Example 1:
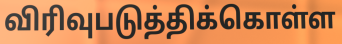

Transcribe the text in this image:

விரிவுபடுத்திக்கொள்ள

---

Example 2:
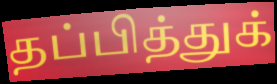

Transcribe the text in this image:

தப்பித்துக்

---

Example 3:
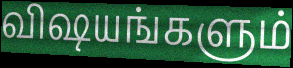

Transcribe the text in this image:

விஷயங்களும்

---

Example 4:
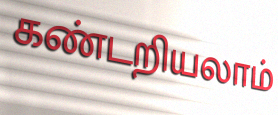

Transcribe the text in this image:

கண்டறியலாம்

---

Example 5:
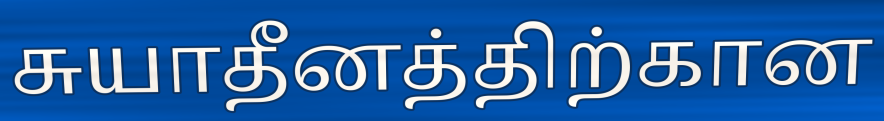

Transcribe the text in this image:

சுயாதீனத்திற்கான